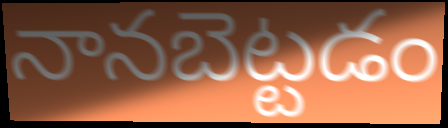
నానబెట్టడం